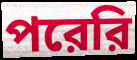
পরেরি